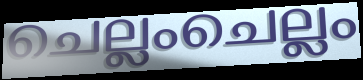
ചെല്ലംചെല്ലം